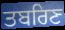
ਤਬਰਿਣ